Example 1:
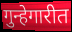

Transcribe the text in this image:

गुन्हेगारीत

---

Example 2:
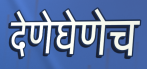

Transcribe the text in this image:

देणेघेणेच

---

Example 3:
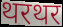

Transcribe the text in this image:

थरथर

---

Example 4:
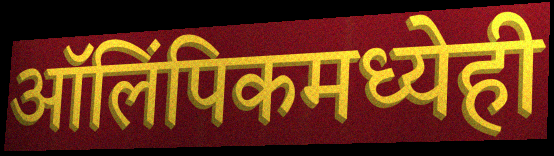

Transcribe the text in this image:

ऑलिंपिकमध्येही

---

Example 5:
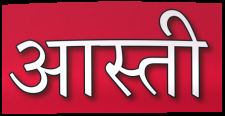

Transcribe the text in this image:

आस्ती